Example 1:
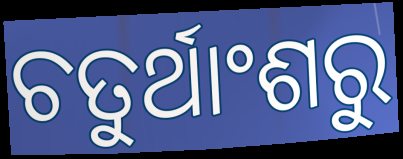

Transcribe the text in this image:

ଚତୁର୍ଥାଂଶରୁ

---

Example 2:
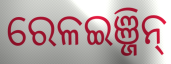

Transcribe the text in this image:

ରେଳଇଞ୍ଜିନ୍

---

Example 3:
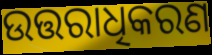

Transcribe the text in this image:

ଉତ୍ତରାଧିକରଣ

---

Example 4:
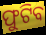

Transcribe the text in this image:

ଫୁଟିବ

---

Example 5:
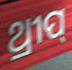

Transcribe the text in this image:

ଥ୍ରୀପ୍